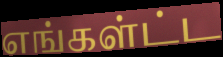
எங்கள்ட்ட